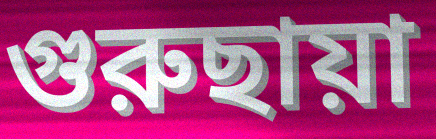
গুরুছায়া